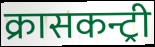
क्रासकन्ट्री